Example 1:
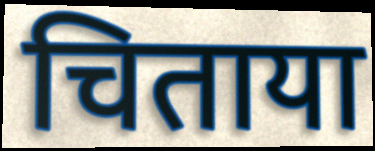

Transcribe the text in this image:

चिताया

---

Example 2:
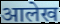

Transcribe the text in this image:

आलेख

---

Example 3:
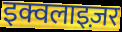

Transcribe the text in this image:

इक्वलाइज़र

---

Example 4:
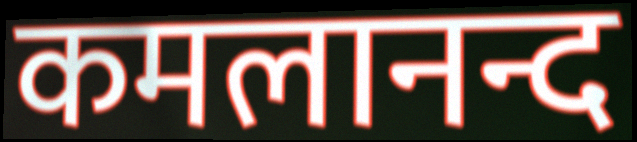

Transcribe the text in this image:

कमलानन्द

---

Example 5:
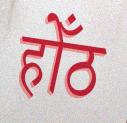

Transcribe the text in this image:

होँठ